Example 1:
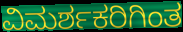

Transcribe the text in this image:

ವಿಮರ್ಶಕರಿಗಿಂತ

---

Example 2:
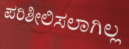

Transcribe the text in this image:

ಪರಿಶೀಲಿಸಲಾಗಿಲ್ಲ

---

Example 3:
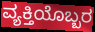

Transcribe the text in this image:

ವ್ಯಕ್ತಿಯೊಬ್ಬರ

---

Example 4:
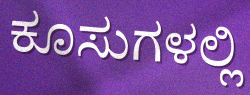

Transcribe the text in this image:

ಕೂಸುಗಳಲ್ಲಿ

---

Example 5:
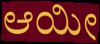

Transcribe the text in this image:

ಆಯೀ